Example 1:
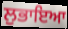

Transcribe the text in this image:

ਲੁਭਾਇਆ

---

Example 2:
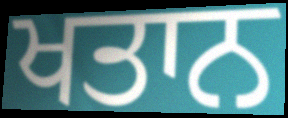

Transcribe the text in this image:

ਖਤਾਨ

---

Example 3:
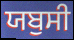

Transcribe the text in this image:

ਯਬੁਸੀ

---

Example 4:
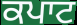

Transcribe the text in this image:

ਕਪਾਟ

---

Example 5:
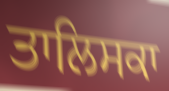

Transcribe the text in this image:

ਤਾਲਿਸਕਾ